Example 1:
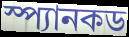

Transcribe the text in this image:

স্প্যানকড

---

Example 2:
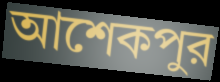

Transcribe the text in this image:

আশেকপুর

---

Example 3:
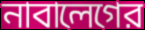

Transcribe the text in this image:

নাবালেগের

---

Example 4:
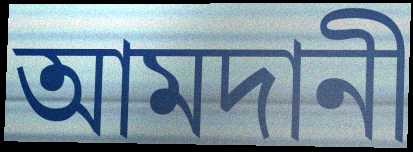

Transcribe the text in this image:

আমদানী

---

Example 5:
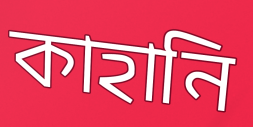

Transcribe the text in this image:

কাহানি